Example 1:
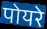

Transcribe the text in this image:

पोयरे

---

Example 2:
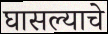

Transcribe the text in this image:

घासल्याचे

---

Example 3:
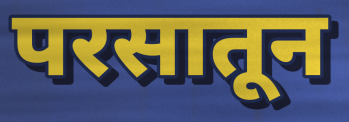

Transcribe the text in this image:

परसातून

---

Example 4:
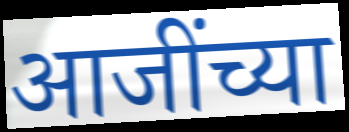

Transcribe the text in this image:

आजींच्या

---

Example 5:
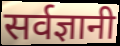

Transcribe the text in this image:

सर्वज्ञानी